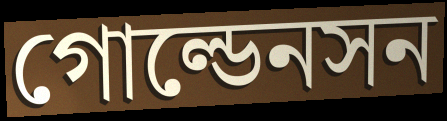
গোল্ডেনসন